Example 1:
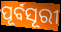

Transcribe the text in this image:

ପୂର୍ବସୂରୀ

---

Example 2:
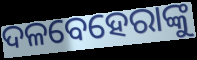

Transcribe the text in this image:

ଦଳବେହେରାଙ୍କୁ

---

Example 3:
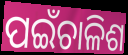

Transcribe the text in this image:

ପଇଁଚାଳିଶ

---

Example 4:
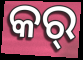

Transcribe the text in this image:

କର୍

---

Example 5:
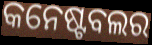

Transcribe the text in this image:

କନେଷ୍ଟବଲର